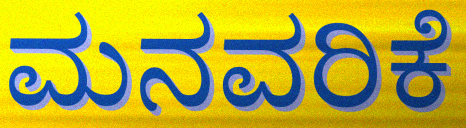
ಮನವರಿಕೆ